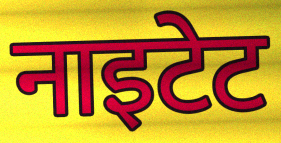
नाइटेट